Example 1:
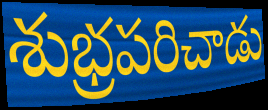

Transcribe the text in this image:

శుభ్రపరిచాడు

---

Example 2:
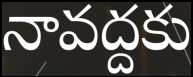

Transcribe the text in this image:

నావద్దకు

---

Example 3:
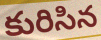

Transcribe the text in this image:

కురిసిన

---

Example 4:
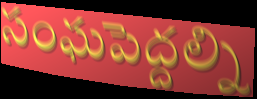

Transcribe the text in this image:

సంఘపెద్దల్ని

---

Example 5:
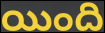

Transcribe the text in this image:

యింది